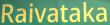
Raivataka